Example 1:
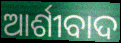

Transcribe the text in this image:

ଆର୍ଶୀବାଦ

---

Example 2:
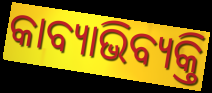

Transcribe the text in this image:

କାବ୍ୟାଭିବ୍ୟକ୍ତି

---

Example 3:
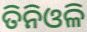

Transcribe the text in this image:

ତିନିଓଳି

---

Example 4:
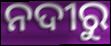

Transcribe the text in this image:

ନଦୀରୁ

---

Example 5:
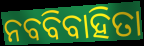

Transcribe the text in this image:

ନବବିବାହିତା